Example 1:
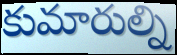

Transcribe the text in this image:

కుమారుల్ని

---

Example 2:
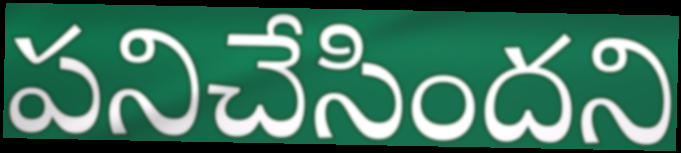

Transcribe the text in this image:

పనిచేసిందని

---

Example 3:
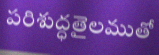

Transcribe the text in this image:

పరిశుద్ధతైలముతో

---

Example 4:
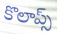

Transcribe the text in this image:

కొలాప్స్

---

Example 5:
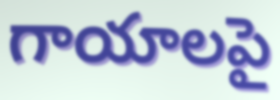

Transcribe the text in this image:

గాయాలపై